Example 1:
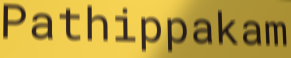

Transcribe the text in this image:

Pathippakam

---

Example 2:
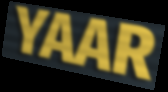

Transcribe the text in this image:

YAAR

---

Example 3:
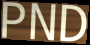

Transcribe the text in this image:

PND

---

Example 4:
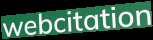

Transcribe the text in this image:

webcitation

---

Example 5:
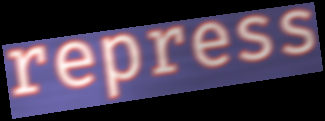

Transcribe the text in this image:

repress